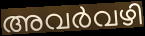
അവർവഴി